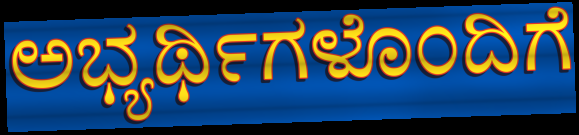
ಅಭ್ಯರ್ಥಿಗಳೊಂದಿಗೆ